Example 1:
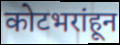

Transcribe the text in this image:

कोटभरांहून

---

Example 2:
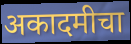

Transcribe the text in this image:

अकादमीचा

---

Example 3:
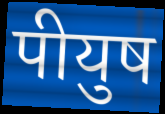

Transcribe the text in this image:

पीयुष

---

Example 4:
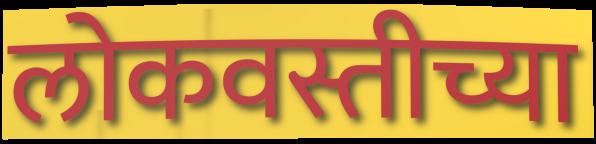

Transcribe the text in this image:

लोकवस्तीच्या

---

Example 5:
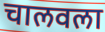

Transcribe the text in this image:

चालवला